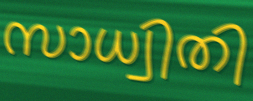
സാധ്വിതി